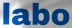
labo